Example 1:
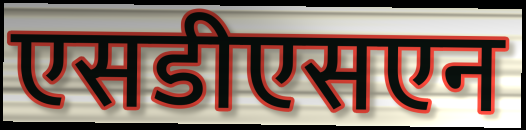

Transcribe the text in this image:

एसडीएसएन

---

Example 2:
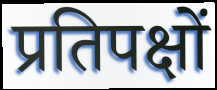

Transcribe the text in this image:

प्रतिपक्षों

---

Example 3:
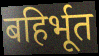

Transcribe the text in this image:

बहिर्भूत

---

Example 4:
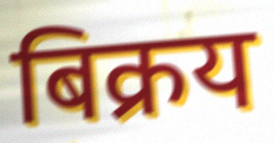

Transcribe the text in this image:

बिक्रय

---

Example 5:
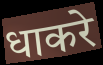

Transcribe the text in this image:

धाकरे